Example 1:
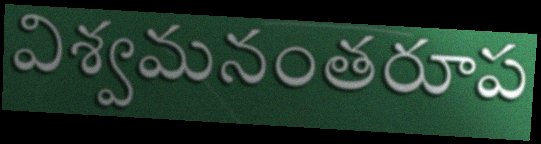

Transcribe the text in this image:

విశ్వమనంతరూప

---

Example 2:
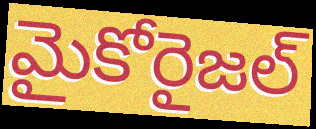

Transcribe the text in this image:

మైకోరైజల్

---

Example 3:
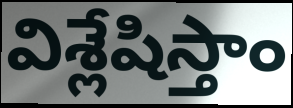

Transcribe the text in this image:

విశ్లేషిస్తాం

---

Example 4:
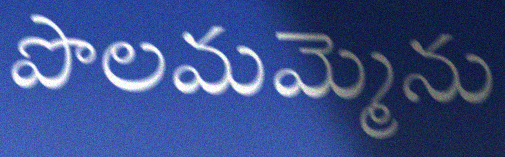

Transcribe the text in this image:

పొలమమ్మెను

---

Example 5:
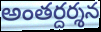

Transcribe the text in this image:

అంతర్దర్శన